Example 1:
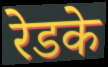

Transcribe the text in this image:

रेडके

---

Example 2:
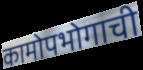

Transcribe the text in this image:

कामोपभोगाची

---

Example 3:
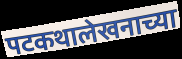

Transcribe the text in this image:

पटकथालेखनाच्या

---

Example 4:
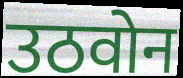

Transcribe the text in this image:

उठवोन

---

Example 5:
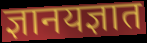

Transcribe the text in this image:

ज्ञानयज्ञात